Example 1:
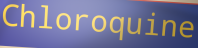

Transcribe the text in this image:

Chloroquine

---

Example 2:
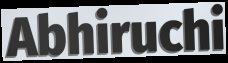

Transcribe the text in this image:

Abhiruchi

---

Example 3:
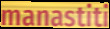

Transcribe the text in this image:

manastiti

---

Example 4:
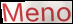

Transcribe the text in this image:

Meno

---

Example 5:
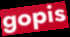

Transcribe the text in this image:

gopis